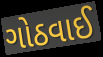
ગોઠવાઈ